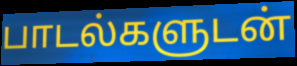
பாடல்களுடன்